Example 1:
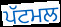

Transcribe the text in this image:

ਪੱਟਮਲ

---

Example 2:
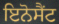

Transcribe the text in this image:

ਇਨੋਸੈਂਟ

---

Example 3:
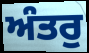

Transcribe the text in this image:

ਅੰਤਰੁ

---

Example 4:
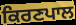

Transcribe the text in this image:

ਕਿਰਣਪਾਲ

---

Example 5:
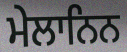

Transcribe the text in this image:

ਮੇਲਾਨਿਨ